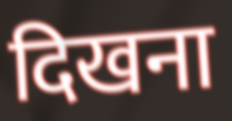
दिखना